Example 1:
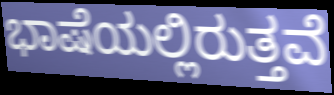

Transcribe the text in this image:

ಭಾಷೆಯಲ್ಲಿರುತ್ತವೆ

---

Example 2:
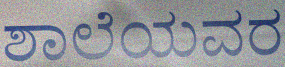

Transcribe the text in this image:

ಶಾಲೆಯವರ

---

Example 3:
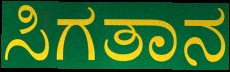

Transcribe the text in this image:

ಸಿಗತಾನ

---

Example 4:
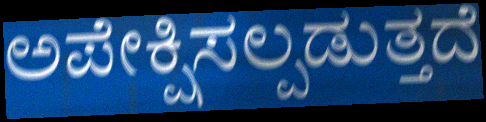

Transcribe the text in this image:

ಅಪೇಕ್ಷಿಸಲ್ಪಡುತ್ತದೆ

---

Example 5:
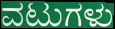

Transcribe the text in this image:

ವಟುಗಳು